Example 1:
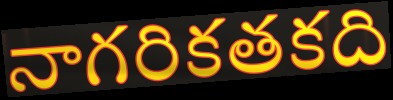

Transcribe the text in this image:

నాగరికతకది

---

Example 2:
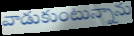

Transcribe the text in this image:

వాడుకుంటున్నాను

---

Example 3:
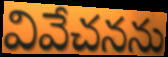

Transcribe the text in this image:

వివేచనను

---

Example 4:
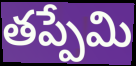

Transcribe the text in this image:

తప్పేమి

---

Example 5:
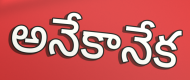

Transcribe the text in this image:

అనేకానేక